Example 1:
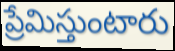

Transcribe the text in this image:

ప్రేమిస్తుంటారు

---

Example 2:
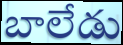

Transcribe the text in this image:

బాలేడు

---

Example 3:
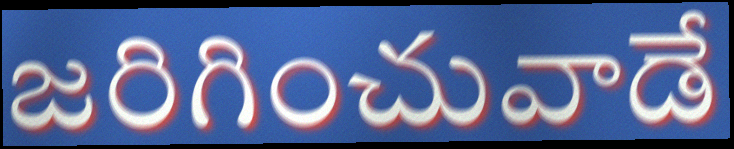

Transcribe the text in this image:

జరిగించువాడే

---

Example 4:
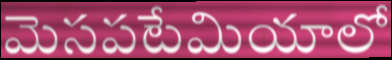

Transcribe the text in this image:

మెసపటేమియాలో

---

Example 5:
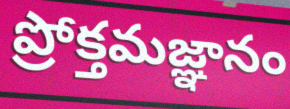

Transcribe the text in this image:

ప్రోక్తమజ్ఞానం